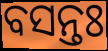
ବସନ୍ତଃ